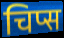
चिप्स